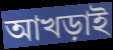
আখড়াই